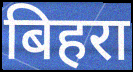
बिहरा